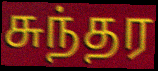
சுந்தர